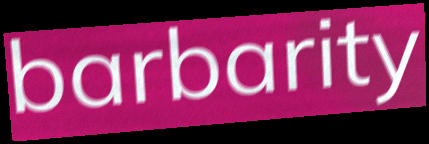
barbarity